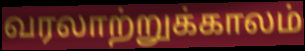
வரலாற்றுக்காலம்